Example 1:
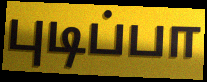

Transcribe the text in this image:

புடிப்பா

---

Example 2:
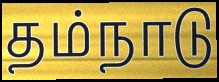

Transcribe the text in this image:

தம்நாடு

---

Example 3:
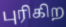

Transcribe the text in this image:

புரிகிற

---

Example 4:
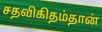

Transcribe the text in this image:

சதவிகிதம்தான்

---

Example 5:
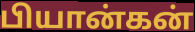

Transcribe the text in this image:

பியான்கன்